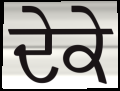
ਦੇਕੇ